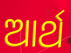
ଆର୍ଥ